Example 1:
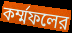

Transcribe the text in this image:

কর্ম্মফলের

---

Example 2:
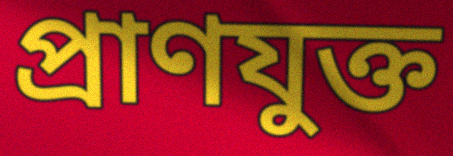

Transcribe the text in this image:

প্রাণযুক্ত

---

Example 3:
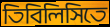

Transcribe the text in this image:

তিবিলিসিতে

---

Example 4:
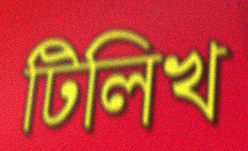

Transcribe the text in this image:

টিলিখ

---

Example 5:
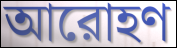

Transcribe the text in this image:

আরোহণ